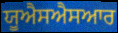
ਯੂਐਸਐਸਆਰ